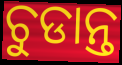
ଚୁଡାନ୍ତ